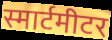
स्मार्टमीटर